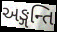
અઙ્ગન્તિ